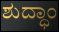
ಶುದ್ಧಾಂ